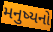
મનુષ્યનો